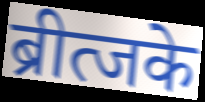
ब्रीत्जके